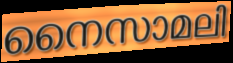
നൈസാമലി